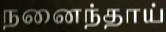
நனைந்தாய்